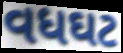
વધઘટ